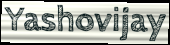
Yashovijay